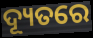
ଦ୍ୟୂତରେ